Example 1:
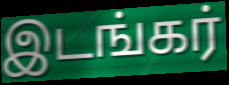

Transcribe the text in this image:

இடங்கர்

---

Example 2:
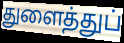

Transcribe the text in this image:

துளைத்துப்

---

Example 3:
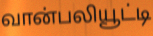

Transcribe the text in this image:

வான்பலியூட்டி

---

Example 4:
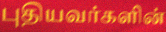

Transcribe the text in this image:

புதியவர்களின்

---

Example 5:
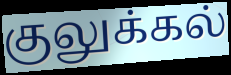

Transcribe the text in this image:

குலுக்கல்